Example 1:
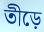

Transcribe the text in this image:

তীড়ে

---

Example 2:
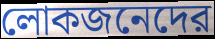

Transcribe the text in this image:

লোকজনেদের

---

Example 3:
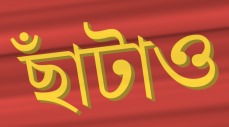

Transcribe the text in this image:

ছাঁটাও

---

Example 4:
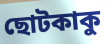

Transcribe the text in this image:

ছোটকাকু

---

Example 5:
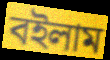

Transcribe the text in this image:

বইলাম